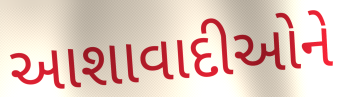
આશાવાદીઓને